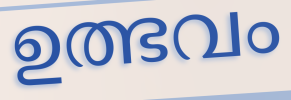
ഉത്ഭവം